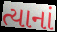
ત્યાનાં